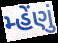
મ્હેંણું